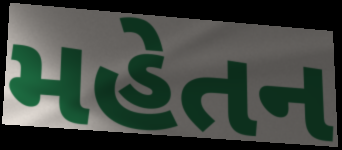
મહેતન